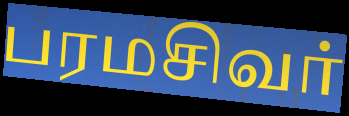
பரமசிவர்